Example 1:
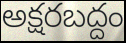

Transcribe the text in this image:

అక్షరబద్దం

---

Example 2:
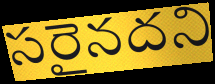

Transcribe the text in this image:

సరైనదని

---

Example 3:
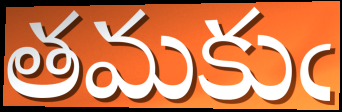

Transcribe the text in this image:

తమకుఁ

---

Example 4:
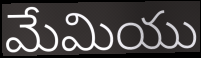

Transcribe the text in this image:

మేమియు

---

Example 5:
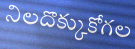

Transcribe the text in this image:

నిలదొక్కుకోగల